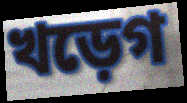
খড়েগ